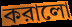
করালো